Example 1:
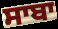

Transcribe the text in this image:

ਸਾਬਾ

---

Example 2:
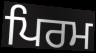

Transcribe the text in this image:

ਪਿਰਮ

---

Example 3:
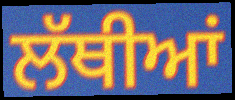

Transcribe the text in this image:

ਲੱਥੀਆਂ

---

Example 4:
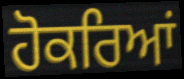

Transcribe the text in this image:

ਹੋਕਰਿਆਂ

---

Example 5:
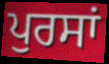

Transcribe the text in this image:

ਪੁਰਸਾਂ